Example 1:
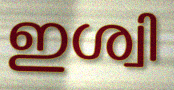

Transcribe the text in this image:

ഇശ്വി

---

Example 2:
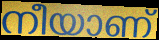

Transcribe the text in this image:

നീയാണ്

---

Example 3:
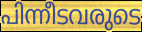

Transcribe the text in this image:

പിന്നീടവരുടെ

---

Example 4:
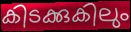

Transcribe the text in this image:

കിടക്കുകിലും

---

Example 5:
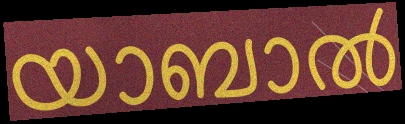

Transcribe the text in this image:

യാബാൽ